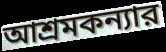
আশ্রমকন্যার